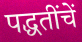
पद्धतींचें